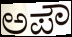
ಅಪೌ